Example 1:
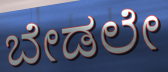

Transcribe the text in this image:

ಬೇಡಲೇ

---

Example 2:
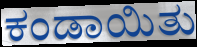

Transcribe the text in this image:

ಕಂಡಾಯಿತು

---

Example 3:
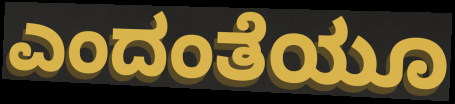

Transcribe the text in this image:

ಎಂದಂತೆಯೂ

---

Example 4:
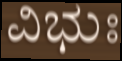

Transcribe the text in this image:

ವಿಭುಃ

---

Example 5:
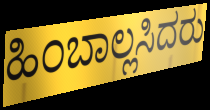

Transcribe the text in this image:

ಹಿಂಬಾಲ್ಲಸಿದರು